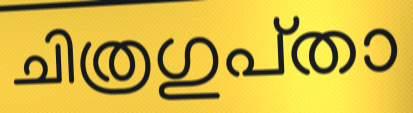
ചിത്രഗുപ്‌താ